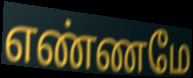
எண்ணமே